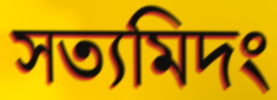
সত্যমিদং